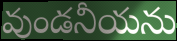
వుండనీయను